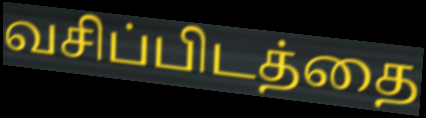
வசிப்பிடத்தை